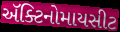
ઍક્ટિનોમાયસીટ